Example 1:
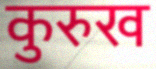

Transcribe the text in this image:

कुरुख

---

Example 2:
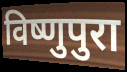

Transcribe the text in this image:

विष्णुपुरा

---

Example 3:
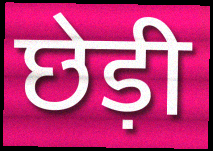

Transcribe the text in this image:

छेड़ी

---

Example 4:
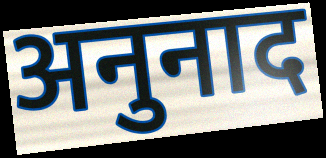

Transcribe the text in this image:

अनुनाद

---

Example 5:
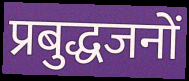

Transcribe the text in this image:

प्रबुद्धजनों